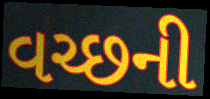
વચ્છની